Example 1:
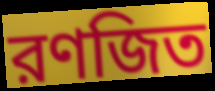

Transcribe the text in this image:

রণজিত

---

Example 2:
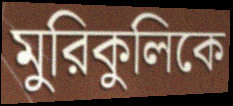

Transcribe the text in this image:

মুরিকুলিকে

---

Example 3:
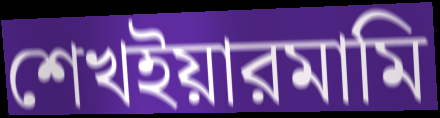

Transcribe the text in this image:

শেখইয়ারমামি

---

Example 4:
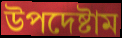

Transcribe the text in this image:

উপদেষ্টাম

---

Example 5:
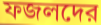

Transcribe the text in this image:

ফজলদের